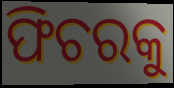
ଫିଚରକୁ